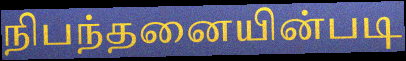
நிபந்தனையின்படி